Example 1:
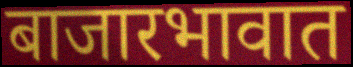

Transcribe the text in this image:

बाजारभावात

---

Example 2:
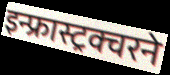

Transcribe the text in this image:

इन्फ्रास्ट्रक्चरने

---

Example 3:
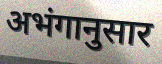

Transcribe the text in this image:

अभंगानुसार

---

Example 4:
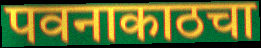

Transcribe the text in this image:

पवनाकाठचा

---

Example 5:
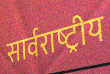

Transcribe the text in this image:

सार्वराष्ट्रीय